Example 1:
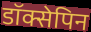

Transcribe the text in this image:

डॉक्सेपिन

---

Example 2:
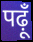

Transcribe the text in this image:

पढ़ूँ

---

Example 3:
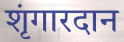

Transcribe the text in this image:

शृंगारदान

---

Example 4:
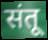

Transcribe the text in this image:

संतू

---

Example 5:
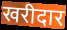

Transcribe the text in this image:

खरीदार